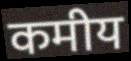
कमीय